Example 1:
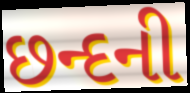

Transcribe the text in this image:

છન્દની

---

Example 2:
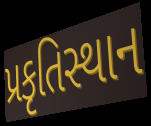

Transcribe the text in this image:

પ્રકૃતિસ્થાન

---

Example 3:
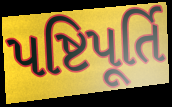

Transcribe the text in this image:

પષ્ટિપૂર્તિ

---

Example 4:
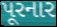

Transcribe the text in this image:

પૂરનાર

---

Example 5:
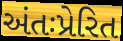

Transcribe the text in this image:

અંતઃપ્રેરિત